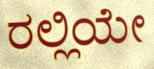
ರಲ್ಲಿಯೇ